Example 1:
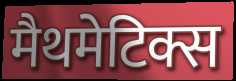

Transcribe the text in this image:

मैथमेटिक्स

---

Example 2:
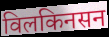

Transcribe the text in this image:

विलकिनसन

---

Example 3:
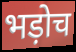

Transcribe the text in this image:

भड़ोच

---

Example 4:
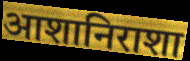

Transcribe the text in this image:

आशानिराशा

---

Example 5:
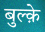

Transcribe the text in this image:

बुल्क़े